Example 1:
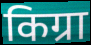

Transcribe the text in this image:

किग्रा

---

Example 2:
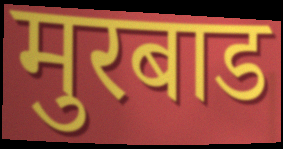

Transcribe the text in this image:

मुरबाड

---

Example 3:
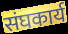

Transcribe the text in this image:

संघकार्य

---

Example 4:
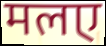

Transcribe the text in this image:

मलए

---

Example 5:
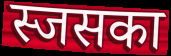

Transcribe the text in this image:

स्जसका